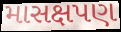
માસક્ષપણ